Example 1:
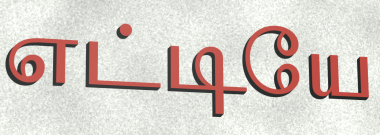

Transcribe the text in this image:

எட்டியே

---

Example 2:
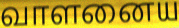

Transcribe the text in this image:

வாளனைய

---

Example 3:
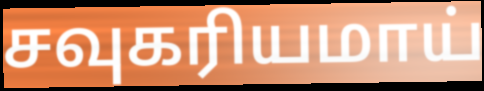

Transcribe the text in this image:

சவுகரியமாய்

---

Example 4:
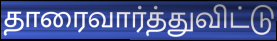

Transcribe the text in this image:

தாரைவார்த்துவிட்டு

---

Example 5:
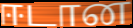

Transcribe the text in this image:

ஈடான